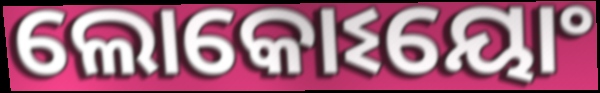
ଲୋକୋଽୟୋଂ